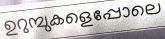
ഉറുമ്പുകളെപ്പോലെ